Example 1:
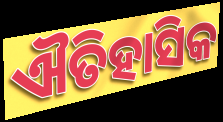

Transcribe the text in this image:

ଐତିହାସିକ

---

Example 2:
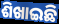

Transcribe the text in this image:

ଶିଖାଇଛି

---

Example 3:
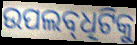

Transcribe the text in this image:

ଉପଲବ୍‌ଧିଟିକୁ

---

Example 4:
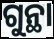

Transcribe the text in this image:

ଗୁନ୍ଥା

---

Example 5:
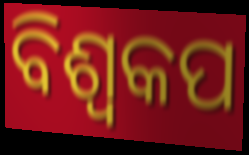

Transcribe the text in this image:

ବିଶ୍ୱକପ